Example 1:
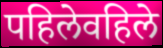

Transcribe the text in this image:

पहिलेवहिले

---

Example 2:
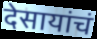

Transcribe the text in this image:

देसायांचं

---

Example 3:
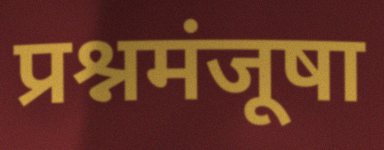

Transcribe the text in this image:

प्रश्नमंजूषा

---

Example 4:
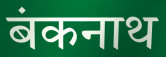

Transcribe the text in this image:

बंकनाथ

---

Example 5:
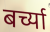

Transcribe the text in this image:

बर्च्या